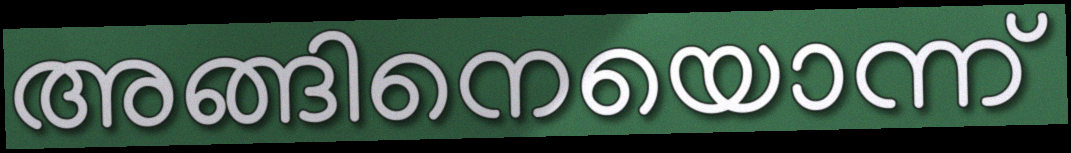
അങ്ങിനെയൊന്ന്